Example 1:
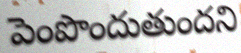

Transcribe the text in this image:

పెంపొందుతుందని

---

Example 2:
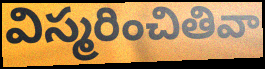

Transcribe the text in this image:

విస్మరించితివా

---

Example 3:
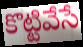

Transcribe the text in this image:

కొట్టివేసే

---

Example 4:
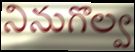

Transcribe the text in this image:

నినుగొల్వ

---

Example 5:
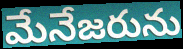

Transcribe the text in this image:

మేనేజరును